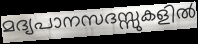
മദ്യപാനസദസ്സുകളിൽ